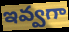
ఇవ్వగా